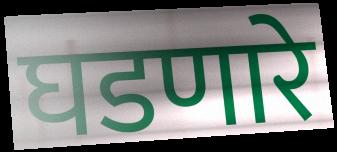
घडणारे